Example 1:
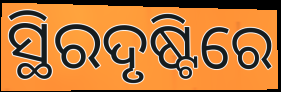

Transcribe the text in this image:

ସ୍ଥିରଦୃଷ୍ଟିରେ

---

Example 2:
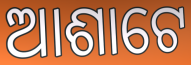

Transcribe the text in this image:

ଆଶାଟେ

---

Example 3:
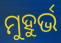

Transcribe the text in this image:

ମୁହୁର୍ଭ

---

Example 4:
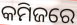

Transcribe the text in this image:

କମିଜରେ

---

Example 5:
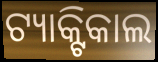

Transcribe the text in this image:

ଟ୍ୟାକ୍ଟିକାଲ